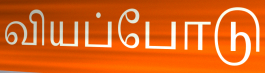
வியப்போடு